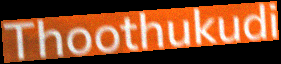
Thoothukudi